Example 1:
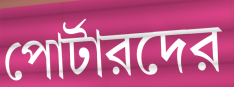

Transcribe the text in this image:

পোর্টারদের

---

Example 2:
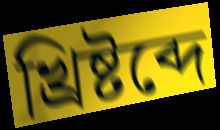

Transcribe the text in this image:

খ্রিষ্টব্দে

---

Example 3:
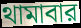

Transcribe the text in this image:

থামাবার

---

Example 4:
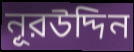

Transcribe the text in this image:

নূরউদ্দিন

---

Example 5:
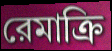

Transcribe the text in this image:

রেমাক্রি